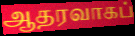
ஆதரவாகப்